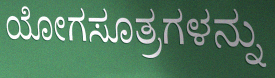
ಯೋಗಸೂತ್ರಗಳನ್ನು